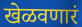
खेळवणारं